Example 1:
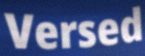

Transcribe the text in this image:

Versed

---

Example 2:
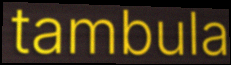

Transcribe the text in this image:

tambula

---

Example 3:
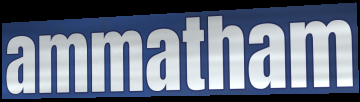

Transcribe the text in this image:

ammatham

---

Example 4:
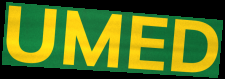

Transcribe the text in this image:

UMED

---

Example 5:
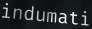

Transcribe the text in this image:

indumati